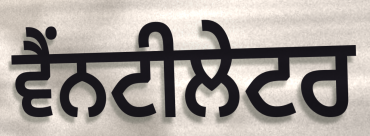
ਵੈਂਨਟੀਲੇਟਰ